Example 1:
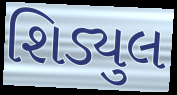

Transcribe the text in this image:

શિડ્યુલ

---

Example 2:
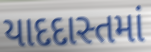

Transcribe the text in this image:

યાદદાસ્તમાં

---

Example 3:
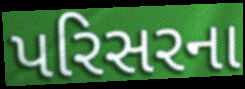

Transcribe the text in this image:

પરિસરના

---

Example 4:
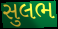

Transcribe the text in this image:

સુલભ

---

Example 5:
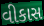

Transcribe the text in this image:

વીકાસ